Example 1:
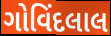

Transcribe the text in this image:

ગોવિંદલાલ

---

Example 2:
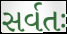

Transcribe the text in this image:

સર્વતઃ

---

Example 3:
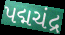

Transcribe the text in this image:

પદ્મચંદ્ર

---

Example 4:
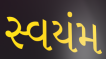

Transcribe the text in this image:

સ્વયંમ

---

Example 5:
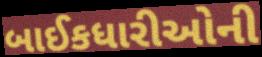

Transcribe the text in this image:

બાઈકધારીઓની